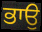
ਭਾਉ